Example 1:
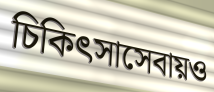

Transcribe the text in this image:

চিকিৎসাসেবায়ও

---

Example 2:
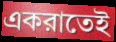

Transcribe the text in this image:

একরাতেই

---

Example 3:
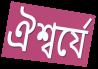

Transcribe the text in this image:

ঐশ্বর্যে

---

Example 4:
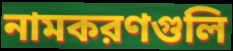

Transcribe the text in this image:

নামকরণগুলি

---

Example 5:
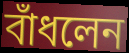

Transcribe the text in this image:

বাঁধলেন